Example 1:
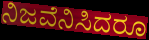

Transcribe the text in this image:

ನಿಜವೆನಿಸಿದರೂ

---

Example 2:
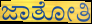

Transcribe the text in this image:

ಜಾತೋತಿ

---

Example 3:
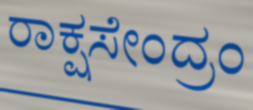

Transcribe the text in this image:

ರಾಕ್ಷಸೇಂದ್ರಂ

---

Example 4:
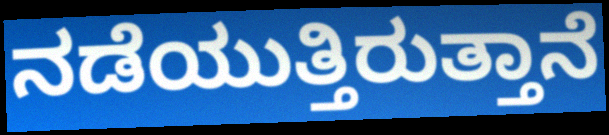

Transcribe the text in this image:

ನಡೆಯುತ್ತಿರುತ್ತಾನೆ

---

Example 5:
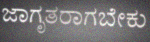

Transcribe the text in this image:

ಜಾಗೃತರಾಗಬೇಕು